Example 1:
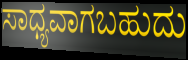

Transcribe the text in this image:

ಸಾಧ್ಯವಾಗಬಹುದು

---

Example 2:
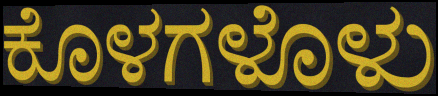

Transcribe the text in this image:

ಕೊಳಗಳೊಳು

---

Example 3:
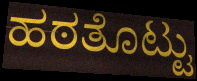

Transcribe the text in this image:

ಹಠತೊಟ್ಟು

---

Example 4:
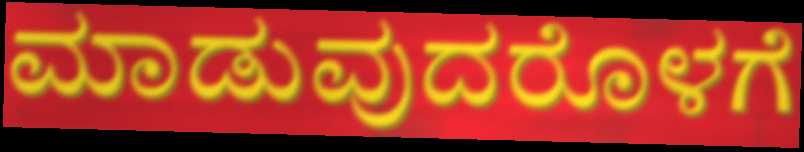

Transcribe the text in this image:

ಮಾಡುವುದರೊಳಗೆ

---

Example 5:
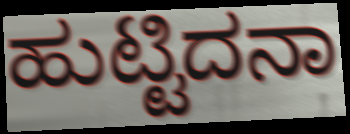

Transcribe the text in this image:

ಹುಟ್ಟಿದನಾ